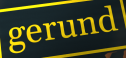
gerund